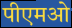
पीएमओ